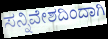
ಸನ್ನಿವೇಶದಿಂದಾಗಿ